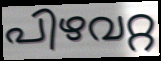
പിഴവറ്റ